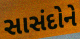
સાસંદોને